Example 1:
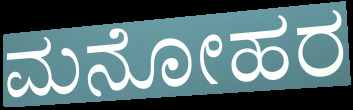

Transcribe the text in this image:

ಮನೋಹರ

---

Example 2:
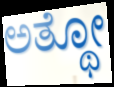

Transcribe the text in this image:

ಅತ್ಥೋ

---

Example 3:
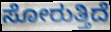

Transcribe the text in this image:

ಸೋರುತ್ತಿದೆ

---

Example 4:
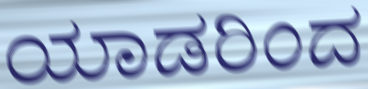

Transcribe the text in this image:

ಯಾಡರಿಂದ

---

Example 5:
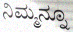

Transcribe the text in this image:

ನಿಮ್ಮನ್ನೂ